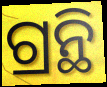
ଗ୍ରନ୍ଥି